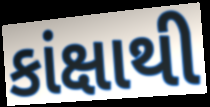
કાંક્ષાથી